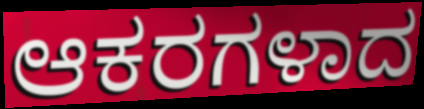
ಆಕರಗಳಾದ